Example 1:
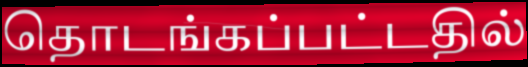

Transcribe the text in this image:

தொடங்கப்பட்டதில்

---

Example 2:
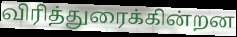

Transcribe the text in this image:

விரித்துரைக்கின்றன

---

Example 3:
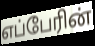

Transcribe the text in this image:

எப்பேரின்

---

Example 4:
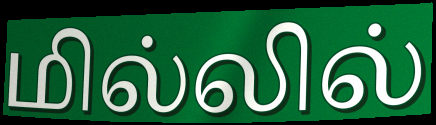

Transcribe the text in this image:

மில்லில்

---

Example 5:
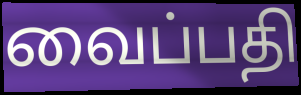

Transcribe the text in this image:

வைப்பதி